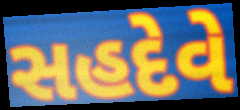
સહદેવે